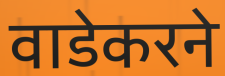
वाडेकरने